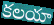
కలయా